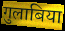
गुलाबिया